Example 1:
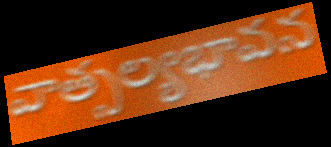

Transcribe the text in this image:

వాత్సల్యభావన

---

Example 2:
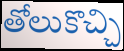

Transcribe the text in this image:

తోలుకొచ్చి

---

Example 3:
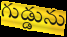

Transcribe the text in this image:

గుడ్డును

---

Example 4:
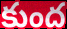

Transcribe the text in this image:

కుంద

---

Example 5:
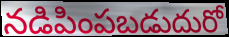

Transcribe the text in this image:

నడిపింపబడుదురో